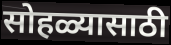
सोहळ्यासाठी